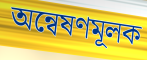
অন্বেষণমূলক